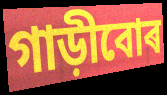
গাড়ীবোৰ